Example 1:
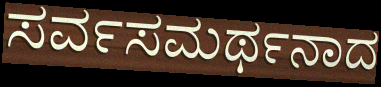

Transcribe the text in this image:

ಸರ್ವಸಮರ್ಥನಾದ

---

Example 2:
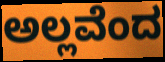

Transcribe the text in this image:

ಅಲ್ಲವೆಂದ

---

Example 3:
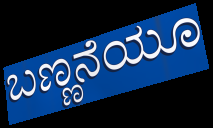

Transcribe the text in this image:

ಬಣ್ಣನೆಯೂ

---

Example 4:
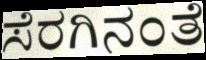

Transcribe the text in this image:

ಸೆರಗಿನಂತೆ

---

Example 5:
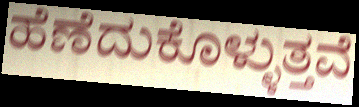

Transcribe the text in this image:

ಹೆಣೆದುಕೊಳ್ಳುತ್ತವೆ